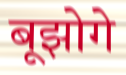
बूझोगे